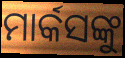
ମାର୍କସଙ୍କୁ